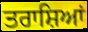
ਤਰਾਸ਼ਿਆਂ